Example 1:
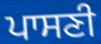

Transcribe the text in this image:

ਪਾਸਣੀ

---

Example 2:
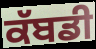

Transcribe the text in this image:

ਕੱਬਡੀ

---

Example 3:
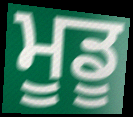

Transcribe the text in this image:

ਮੂਡੂ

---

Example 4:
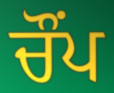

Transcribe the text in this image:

ਚੌਂਪ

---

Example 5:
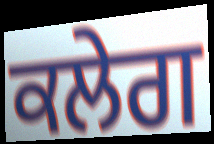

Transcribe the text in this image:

ਕਲੇਗ